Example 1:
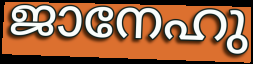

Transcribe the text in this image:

ജാനേഹു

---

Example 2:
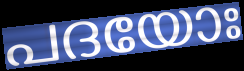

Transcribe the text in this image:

പദയോഃ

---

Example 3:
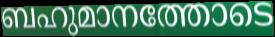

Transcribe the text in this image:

ബഹുമാനത്തോടെ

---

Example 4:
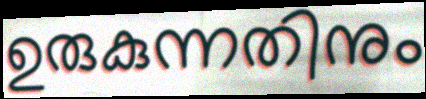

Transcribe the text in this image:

ഉരുകുന്നതിനും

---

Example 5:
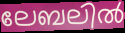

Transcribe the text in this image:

ലേബലിൽ